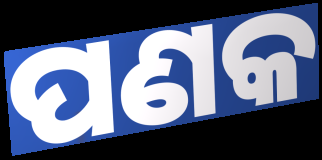
ପଣକ